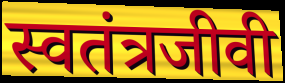
स्वतंत्रजीवी